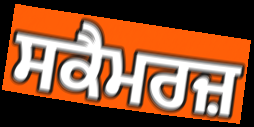
ਸਕੈਮਰਜ਼